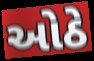
ઓઠે